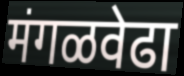
मंगळवेढा